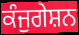
ਕੰਜੁਗੇਸ਼ਨ